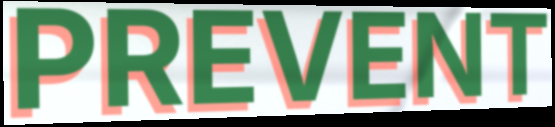
PREVENT